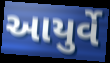
આયુર્વે